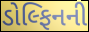
ડોલ્ફિનની